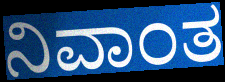
ನಿವಾಂತ